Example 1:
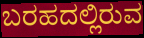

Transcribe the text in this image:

ಬರಹದಲ್ಲಿರುವ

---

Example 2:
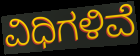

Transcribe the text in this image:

ವಿಧಿಗಳಿವೆ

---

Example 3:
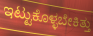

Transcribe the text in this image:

ಇಟ್ಟುಕೊಳ್ಳಬೇಕಿತ್ತು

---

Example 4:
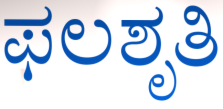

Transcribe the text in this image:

ಫಲಶೃತಿ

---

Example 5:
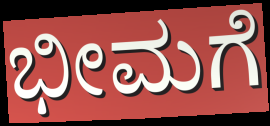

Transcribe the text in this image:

ಭೀಮಗೆ